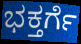
ಭಕ್ತರ್ಗೆ